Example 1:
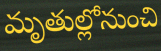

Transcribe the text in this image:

మృతుల్లోనుంచి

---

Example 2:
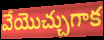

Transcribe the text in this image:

వేయొచ్చుగాక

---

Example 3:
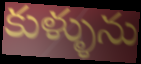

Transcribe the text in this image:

కుళ్ళును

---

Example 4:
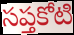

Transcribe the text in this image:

సప్తకోటి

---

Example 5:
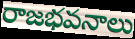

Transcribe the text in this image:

రాజభవనాలు